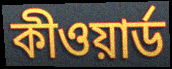
কীওয়ার্ড